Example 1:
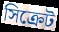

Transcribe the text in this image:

সিক্রেট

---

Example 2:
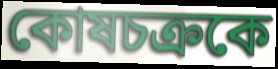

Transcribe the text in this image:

কোষচক্রকে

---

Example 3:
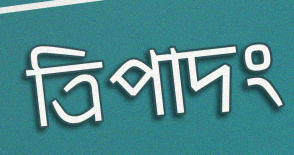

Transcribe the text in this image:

ত্রিপাদং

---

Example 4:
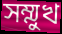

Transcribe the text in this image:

সম্মুখ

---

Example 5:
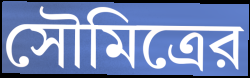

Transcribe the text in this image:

সৌমিত্রের